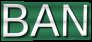
BAN